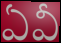
ఏవీ